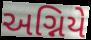
અગ્નિયે